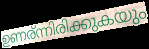
ഉണര്ന്നിരിക്കുകയും